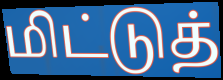
மிட்டுத்